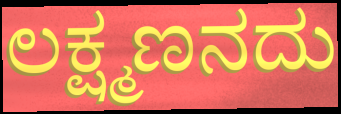
ಲಕ್ಷ್ಮಣನದು